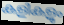
കളികളും